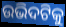
ଉଭିଦଟିକୁ